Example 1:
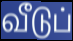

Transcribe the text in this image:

வீடுப்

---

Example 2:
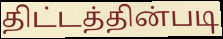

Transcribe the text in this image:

திட்டத்தின்படி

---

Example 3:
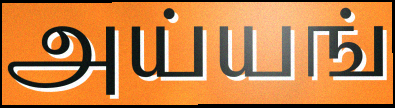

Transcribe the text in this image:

அய்யங்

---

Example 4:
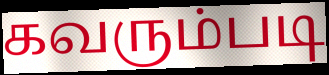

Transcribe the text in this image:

கவரும்படி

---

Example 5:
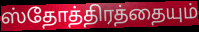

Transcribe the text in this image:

ஸ்தோத்திரத்தையும்